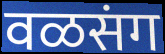
वळसंग